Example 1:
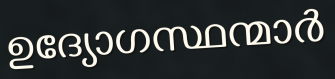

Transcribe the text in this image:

ഉദ്യോഗസ്ഥന്മാർ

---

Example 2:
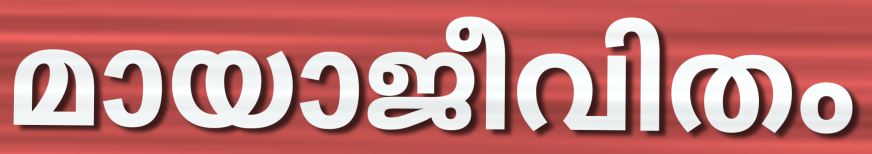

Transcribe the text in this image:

മായാജീവിതം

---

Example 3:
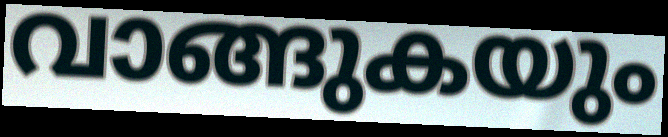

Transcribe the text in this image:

വാങ്ങുകയും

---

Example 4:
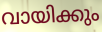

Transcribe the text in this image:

വായിക്കും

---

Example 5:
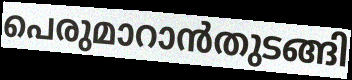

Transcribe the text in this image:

പെരുമാറാൻതുടങ്ങി